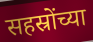
सहस्रोंच्या